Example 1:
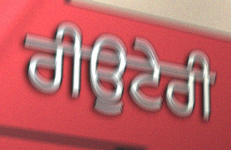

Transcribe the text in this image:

ਰੀਉਟੇਰੀ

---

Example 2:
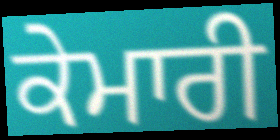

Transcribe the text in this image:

ਕੇਮਾਰੀ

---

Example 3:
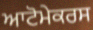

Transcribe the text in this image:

ਆਟੋਮੇਕਰਸ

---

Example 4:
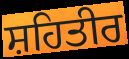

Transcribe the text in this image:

ਸ਼ਹਿਤੀਰ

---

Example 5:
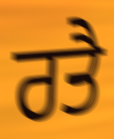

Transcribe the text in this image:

ਰਤੈ